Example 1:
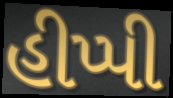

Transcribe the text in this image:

હીપ્પી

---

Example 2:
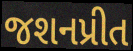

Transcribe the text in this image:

જશનપ્રીત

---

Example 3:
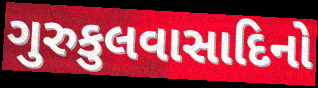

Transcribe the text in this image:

ગુરુકુલવાસાદિનો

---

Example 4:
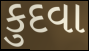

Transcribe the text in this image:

કુદવા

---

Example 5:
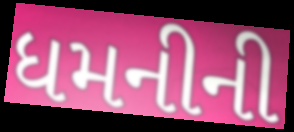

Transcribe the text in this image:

ધમનીની